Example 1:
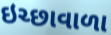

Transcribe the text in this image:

ઇચ્છાવાળા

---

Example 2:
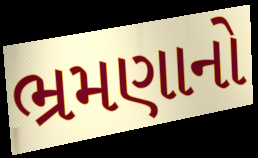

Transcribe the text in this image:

ભ્રમણાનો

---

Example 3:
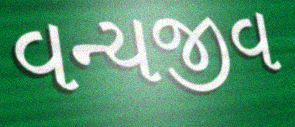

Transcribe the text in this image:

વન્યજીવ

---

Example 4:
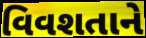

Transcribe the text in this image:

વિવશતાને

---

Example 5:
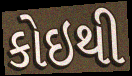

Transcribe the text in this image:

કોઇથી